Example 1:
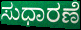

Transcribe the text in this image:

ಸುಧಾರಣೆ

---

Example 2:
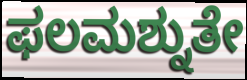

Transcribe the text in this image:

ಫಲಮಶ್ನುತೇ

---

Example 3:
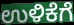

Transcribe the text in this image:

ಉಳಿಕೆಗೆ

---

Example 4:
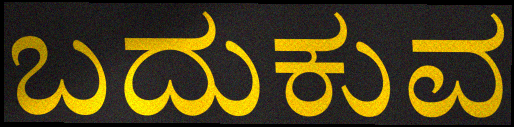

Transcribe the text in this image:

ಬದುಕುವ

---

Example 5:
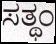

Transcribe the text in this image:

ಸತ್ಥಂ